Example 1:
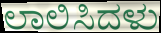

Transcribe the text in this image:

ಲಾಲಿಸಿದಳು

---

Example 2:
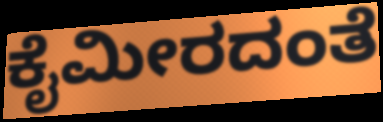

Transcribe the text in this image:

ಕೈಮೀರದಂತೆ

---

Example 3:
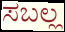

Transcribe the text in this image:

ಸಬಲ್ಲ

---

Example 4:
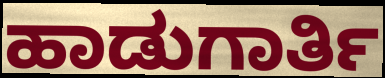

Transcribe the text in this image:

ಹಾಡುಗಾರ್ತಿ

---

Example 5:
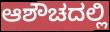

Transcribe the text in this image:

ಆಶೌಚದಲ್ಲಿ